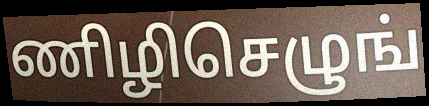
ணிழிசெழுங்